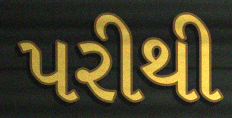
પરીથી